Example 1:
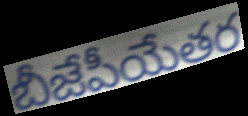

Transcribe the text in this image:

బీజేపీయేతర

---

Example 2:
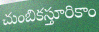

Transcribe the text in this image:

చుంబికస్తూరికాం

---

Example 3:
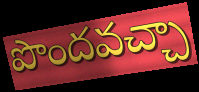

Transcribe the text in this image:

పొందవచ్చా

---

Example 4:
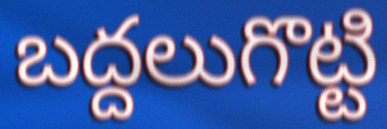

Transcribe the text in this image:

బద్దలుగొట్టి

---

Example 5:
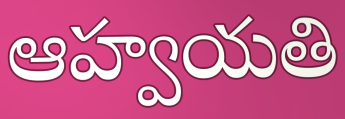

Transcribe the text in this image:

ఆహ్వయతి